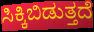
ಸಿಕ್ಕಿಬಿಡುತ್ತದೆ